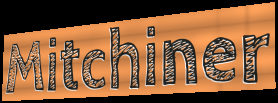
Mitchiner